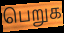
பெறுக